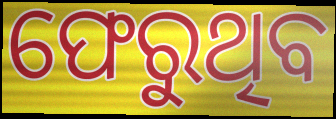
ଫେରୁଥିବ